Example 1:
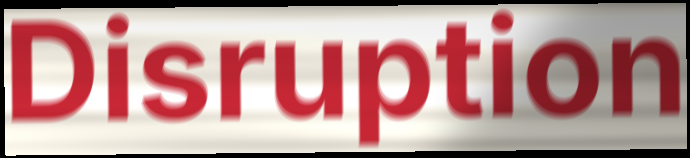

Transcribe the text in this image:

Disruption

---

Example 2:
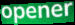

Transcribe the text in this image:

opener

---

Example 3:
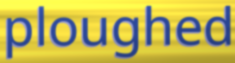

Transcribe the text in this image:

ploughed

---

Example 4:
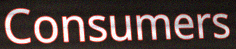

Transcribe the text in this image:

Consumers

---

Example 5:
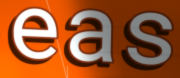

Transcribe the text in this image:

eas